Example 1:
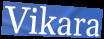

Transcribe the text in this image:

Vikara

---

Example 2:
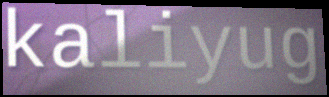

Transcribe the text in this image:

kaliyug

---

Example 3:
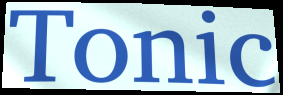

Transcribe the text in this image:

Tonic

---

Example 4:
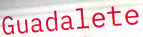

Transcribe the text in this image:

Guadalete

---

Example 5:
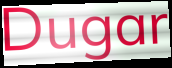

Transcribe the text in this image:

Dugar